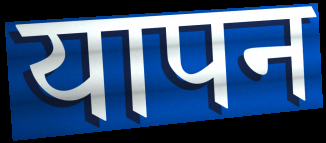
यापन